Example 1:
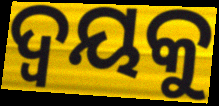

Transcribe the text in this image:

ଦ୍ଵୟକୁ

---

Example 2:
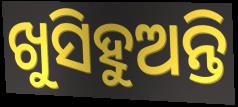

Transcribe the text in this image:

ଖୁସିହୁଅନ୍ତି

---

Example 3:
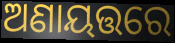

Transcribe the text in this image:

ଅଣାୟତ୍ତରେ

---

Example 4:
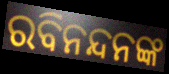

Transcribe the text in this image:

ରବିନନ୍ଦନଙ୍କ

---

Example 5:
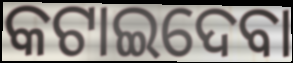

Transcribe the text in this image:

କଟାଇଦେବା